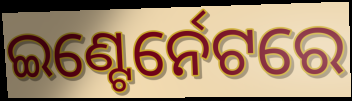
ଇଣ୍ଟେର୍ନେଟରେ